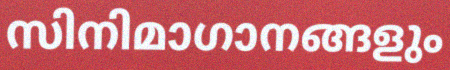
സിനിമാഗാനങ്ങളും